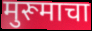
मुरूमाचा